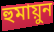
হুমায়ুন